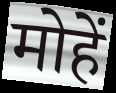
मोहें